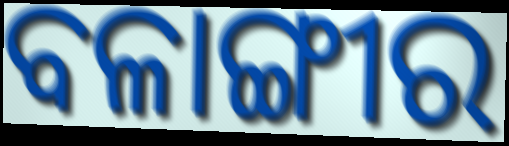
ବଳାଙ୍ଗୀର